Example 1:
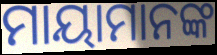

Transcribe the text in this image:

ମାୟାମାନଙ୍କ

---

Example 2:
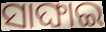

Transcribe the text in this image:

ସାଙ୍ଘାଇ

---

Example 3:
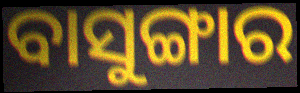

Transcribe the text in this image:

ବାସୁଙ୍ଗାର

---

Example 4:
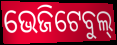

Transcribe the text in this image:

ଭେଜିଟେବୁଲ୍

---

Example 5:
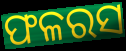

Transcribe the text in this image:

ଫଳରସ